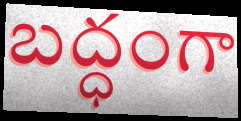
బద్ధంగా